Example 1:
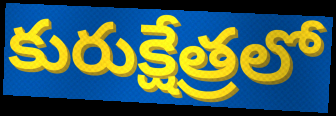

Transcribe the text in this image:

కురుక్షేత్రలో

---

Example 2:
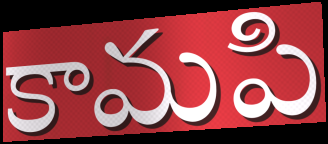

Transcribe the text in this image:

కామపి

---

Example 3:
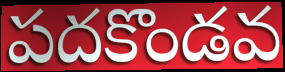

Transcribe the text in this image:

పదకొండవ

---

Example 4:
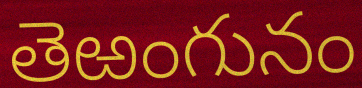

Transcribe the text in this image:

తెఱంగునం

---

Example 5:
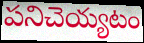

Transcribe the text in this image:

పనిచెయ్యటం